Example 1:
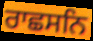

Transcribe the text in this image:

ਰਾਛਸਨਿ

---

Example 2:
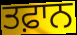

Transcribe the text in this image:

ਤਫ਼ਾਨ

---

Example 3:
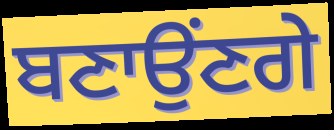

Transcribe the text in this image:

ਬਣਾਉਂਣਗੇ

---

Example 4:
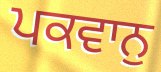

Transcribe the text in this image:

ਪਕਵਾਨੁ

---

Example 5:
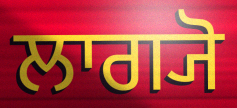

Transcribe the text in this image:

ਲਾਗ੍ਯੋ